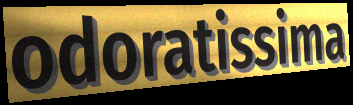
odoratissima